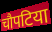
चौपटिया